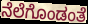
ನೆಲೆಗೊಂಡಂತೆ